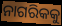
ନାଗରିକକୁ